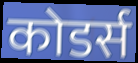
कोडर्स